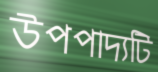
উপপাদ্যটি